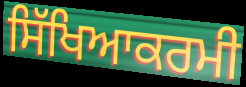
ਸਿੱਖਿਆਕਰਮੀ